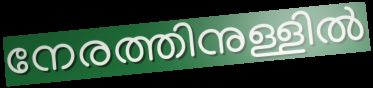
നേരത്തിനുള്ളിൽ